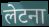
लेटना